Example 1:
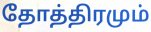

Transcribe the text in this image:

தோத்திரமும்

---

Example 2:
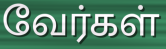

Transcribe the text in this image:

வேர்கள்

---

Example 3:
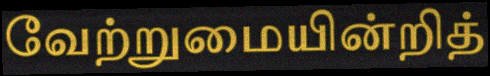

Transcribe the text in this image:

வேற்றுமையின்றித்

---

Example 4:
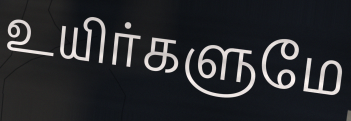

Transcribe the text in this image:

உயிர்களுமே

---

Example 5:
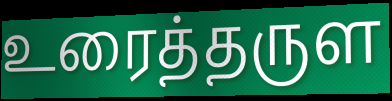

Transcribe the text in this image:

உரைத்தருள